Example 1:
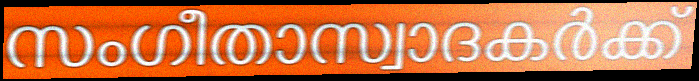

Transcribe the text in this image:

സംഗീതാസ്വാദകർക്ക്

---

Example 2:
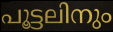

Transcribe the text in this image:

പൂട്ടലിനും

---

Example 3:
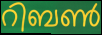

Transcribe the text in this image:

റിബൺ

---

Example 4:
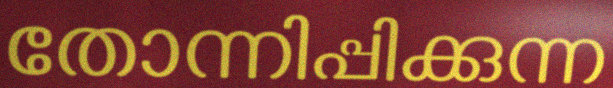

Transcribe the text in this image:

തോന്നിപ്പിക്കുന്ന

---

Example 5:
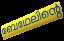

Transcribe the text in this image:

ബേഥേലിന്റെ